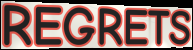
REGRETS